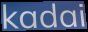
kadai